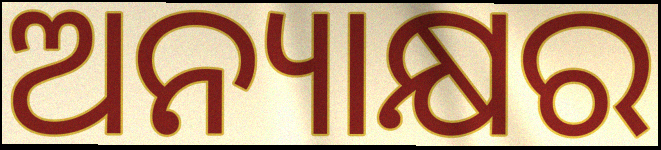
ଅନ୍ୟାକ୍ଷର